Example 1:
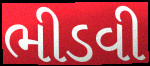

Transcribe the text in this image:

ભીડવી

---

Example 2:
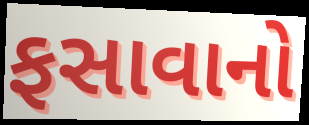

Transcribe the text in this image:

ફસાવાનો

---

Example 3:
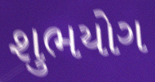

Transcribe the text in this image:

શુભયોગ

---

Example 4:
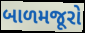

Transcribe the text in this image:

બાળમજૂરો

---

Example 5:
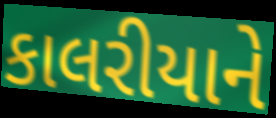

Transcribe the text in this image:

કાલરીયાને